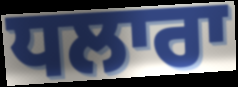
ਧਲਾਰਾ